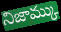
నిజామ్కు